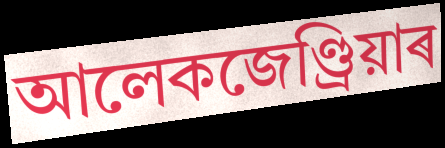
আলেকজেণ্ড্ৰিয়াৰ